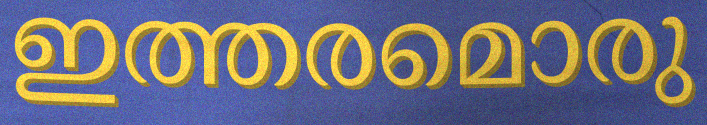
ഇത്തരമൊരു